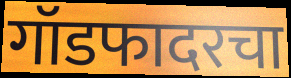
गॉडफादरचा